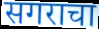
सगराचा